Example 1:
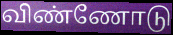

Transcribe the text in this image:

விண்ணோடு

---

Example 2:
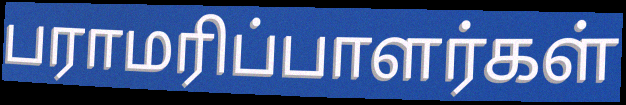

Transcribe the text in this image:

பராமரிப்பாளர்கள்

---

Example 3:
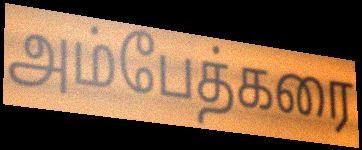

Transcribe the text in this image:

அம்பேத்கரை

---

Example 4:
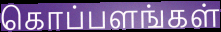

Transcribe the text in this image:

கொப்பளங்கள்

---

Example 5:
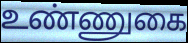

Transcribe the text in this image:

உண்ணுகை